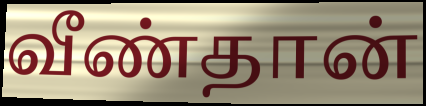
வீண்தான்